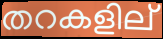
തറകളില്